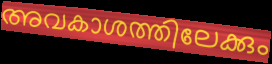
അവകാശത്തിലേക്കും